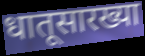
धातूसारख्या